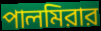
পালমিরার